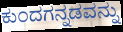
ಕುಂದಗನ್ನಡವನ್ನು